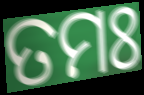
ତମଃ